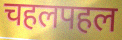
चहलपहल